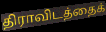
திராவிடத்தைக்